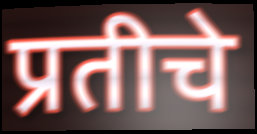
प्रतीचे